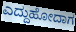
ಎದ್ದುಹೋದಾಗ